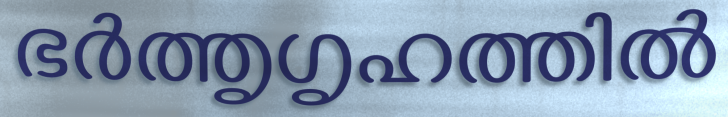
ഭർത്തൃഗൃഹത്തിൽ